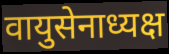
वायुसेनाध्यक्ष